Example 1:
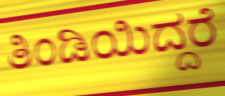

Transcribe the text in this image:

ತಿಂಡಿಯಿದ್ದರೆ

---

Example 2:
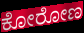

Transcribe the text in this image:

ಕೋರೋಣ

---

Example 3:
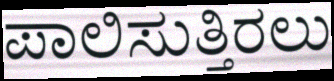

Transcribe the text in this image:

ಪಾಲಿಸುತ್ತಿರಲು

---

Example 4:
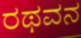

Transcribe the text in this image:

ರಥವನ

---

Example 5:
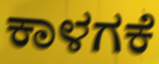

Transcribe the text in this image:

ಕಾಳಗಕೆ